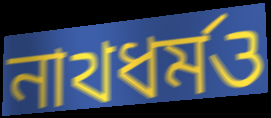
নাথধর্মও